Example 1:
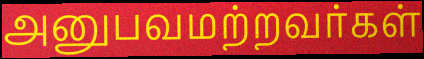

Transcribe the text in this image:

அனுபவமற்றவர்கள்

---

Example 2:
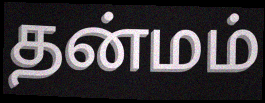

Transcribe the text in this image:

தன்மம்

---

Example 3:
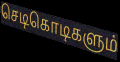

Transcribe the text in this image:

செடிகொடிகளும்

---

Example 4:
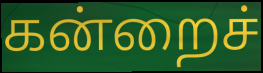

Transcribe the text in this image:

கன்றைச்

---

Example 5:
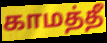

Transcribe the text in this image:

காமத்தீ